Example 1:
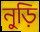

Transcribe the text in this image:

নুড়ি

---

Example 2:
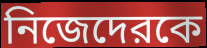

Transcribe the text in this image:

নিজেদেরকে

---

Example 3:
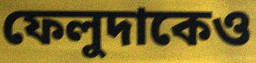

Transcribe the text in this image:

ফেলুদাকেও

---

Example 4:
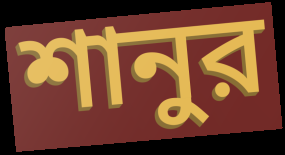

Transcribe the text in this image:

শানুর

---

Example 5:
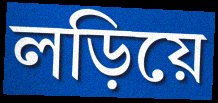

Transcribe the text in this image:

লড়িয়ে